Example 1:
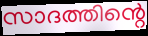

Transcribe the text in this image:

സാദത്തിന്റെ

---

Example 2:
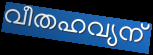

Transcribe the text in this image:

വീതഹവ്യന്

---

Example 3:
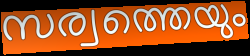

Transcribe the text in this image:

സര്വത്തെയും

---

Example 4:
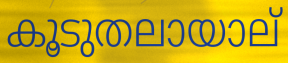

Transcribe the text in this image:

കൂടുതലായാല്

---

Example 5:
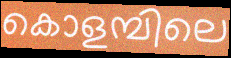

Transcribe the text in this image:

കൊളമ്പിലെ